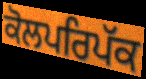
ਕੋਲਪਰਿਪੱਕ